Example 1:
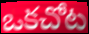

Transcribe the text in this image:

ఒకచోట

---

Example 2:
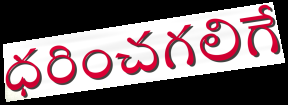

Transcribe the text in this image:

ధరించగలిగే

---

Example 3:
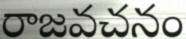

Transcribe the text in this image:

రాజవచనం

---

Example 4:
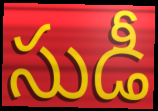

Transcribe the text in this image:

సుడీ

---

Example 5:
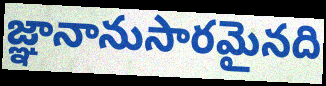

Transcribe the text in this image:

జ్ఞానానుసారమైనది